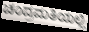
ಚಂದ್ರಮತಿಯಲ್ಲಿ